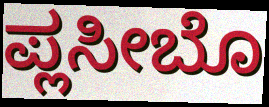
ಪ್ಲಸೀಬೊ